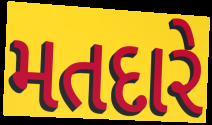
મતદારે